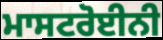
ਮਾਸਟਰੋਈਨੀ